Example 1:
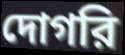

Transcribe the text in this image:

দোগরি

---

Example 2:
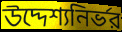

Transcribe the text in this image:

উদ্দেশ্যনির্ভর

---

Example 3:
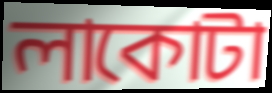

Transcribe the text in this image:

লাকোটা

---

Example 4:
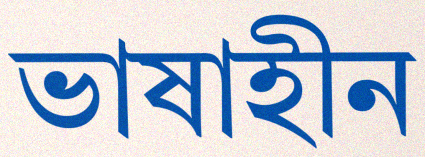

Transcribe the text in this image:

ভাষাহীন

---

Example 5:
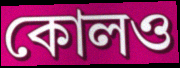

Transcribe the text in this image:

কোলও